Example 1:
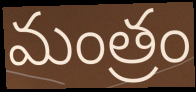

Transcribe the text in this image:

మంత్రం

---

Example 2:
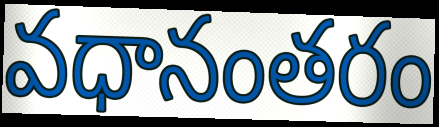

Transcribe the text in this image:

వధానంతరం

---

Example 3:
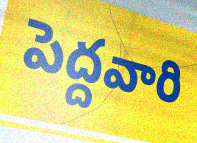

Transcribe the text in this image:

పెద్దవారి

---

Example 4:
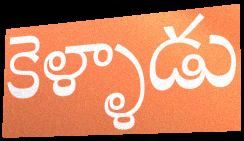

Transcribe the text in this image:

కెళ్ళాడు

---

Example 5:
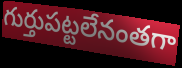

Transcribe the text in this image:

గుర్తుపట్టలేనంతగా